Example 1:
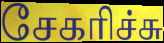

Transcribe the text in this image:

சேகரிச்சு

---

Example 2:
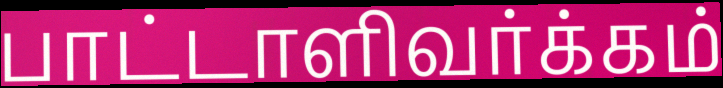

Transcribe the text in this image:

பாட்டாளிவர்க்கம்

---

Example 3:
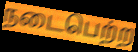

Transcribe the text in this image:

நடைபெற்ற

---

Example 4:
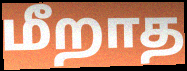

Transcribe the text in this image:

மீறாத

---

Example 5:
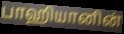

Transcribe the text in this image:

பாஹியானின்